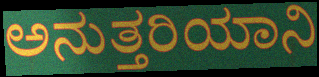
ಅನುತ್ತರಿಯಾನಿ